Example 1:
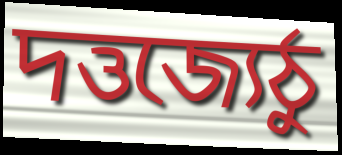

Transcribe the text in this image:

দত্তজ্যেঠু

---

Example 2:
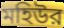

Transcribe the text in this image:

মহিউর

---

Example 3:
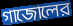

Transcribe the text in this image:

গাজোলের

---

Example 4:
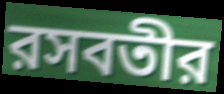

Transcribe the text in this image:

রসবতীর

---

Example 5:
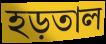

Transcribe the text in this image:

হড়তাল